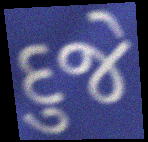
દુજે